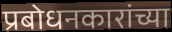
प्रबोधनकारांच्या